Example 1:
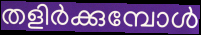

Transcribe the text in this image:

തളിർക്കുമ്പോൾ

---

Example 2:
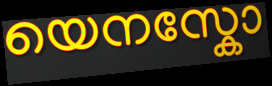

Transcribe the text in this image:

യെനസ്കോ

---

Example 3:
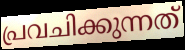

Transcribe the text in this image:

പ്രവചിക്കുന്നത്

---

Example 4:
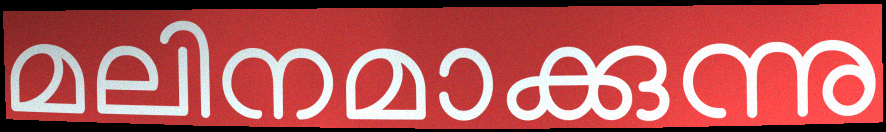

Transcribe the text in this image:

മലിനമാക്കുന്നു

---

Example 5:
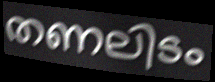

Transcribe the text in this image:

തണലിടം